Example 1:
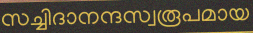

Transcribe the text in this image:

സച്ചിദാനന്ദസ്വരൂപമായ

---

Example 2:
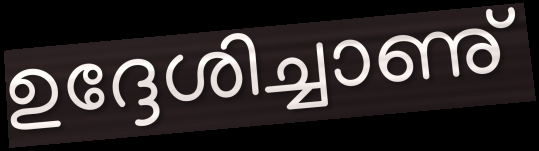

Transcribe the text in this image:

ഉദ്ദേശിച്ചാണു്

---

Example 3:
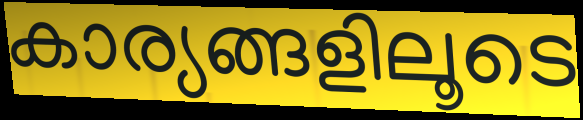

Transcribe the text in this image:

കാര്യങ്ങളിലൂടെ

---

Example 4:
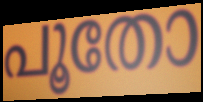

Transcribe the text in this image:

പൂതോ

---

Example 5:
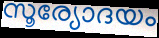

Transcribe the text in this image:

സൂര്യോദയം